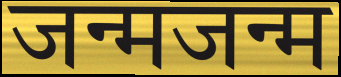
जन्मजन्म